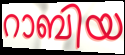
റാബിയ